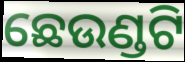
ଛେଉଣ୍ଡଟି